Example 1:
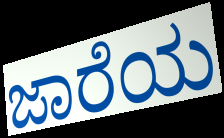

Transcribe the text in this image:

ಜಾರೆಯ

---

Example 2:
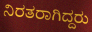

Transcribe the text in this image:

ನಿರತರಾಗಿದ್ದರು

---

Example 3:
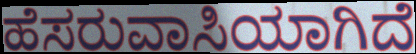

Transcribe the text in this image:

ಹೆಸರುವಾಸಿಯಾಗಿದೆ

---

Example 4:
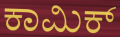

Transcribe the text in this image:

ಕಾಮಿಕ್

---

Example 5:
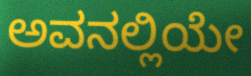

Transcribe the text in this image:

ಅವನಲ್ಲಿಯೇ